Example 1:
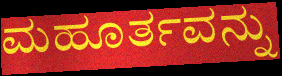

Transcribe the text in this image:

ಮಹೂರ್ತವನ್ನು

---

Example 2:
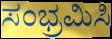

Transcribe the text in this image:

ಸಂಭ್ರಮಿಸಿ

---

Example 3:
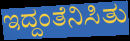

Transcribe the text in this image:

ಇದ್ದಂತೆನಿಸಿತು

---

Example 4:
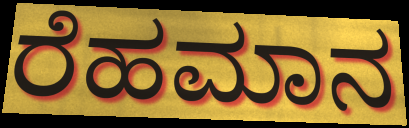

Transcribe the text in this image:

ರೆಹಮಾನ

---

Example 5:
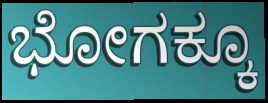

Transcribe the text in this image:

ಭೋಗಕ್ಕೂ